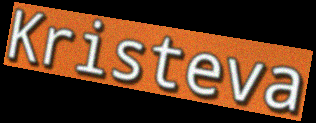
Kristeva